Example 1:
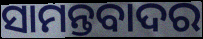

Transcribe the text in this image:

ସାମନ୍ତବାଦର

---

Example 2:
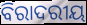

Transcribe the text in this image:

ବିରାଦରୀୟ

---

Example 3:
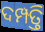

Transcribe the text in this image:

ଦମ୍ପତ୍ତି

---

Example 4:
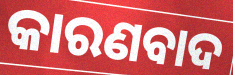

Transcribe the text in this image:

କାରଣବାଦ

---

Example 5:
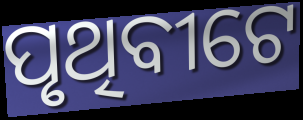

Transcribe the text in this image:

ପୃଥିବୀଟେ